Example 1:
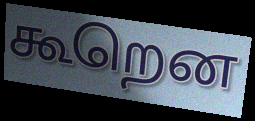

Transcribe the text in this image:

கூறென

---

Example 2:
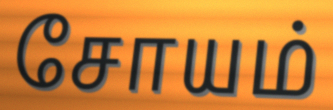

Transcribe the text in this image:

சோயம்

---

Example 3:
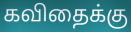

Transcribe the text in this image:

கவிதைக்கு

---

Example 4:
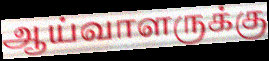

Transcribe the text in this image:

ஆய்வாளருக்கு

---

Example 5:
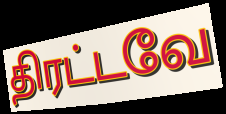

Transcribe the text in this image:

திரட்டவே